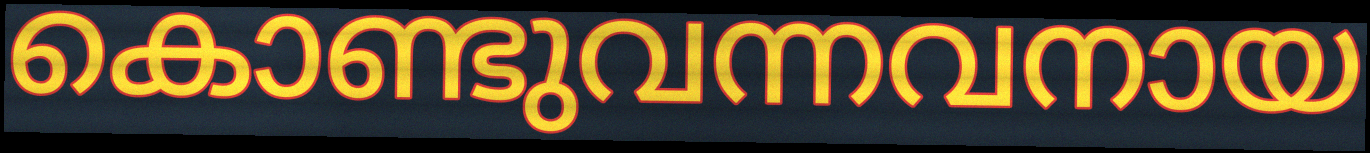
കൊണ്ടുവന്നവനായ